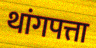
थांगपत्ता